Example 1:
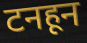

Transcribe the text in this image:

टनहून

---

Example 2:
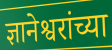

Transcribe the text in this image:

ज्ञानेश्वरांच्या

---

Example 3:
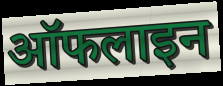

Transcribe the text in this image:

ऑफलाइन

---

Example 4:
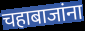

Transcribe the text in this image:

चहाबाजांना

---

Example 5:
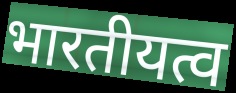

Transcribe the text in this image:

भारतीयत्व